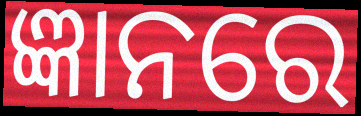
ଜ୍ଞାନରେ